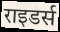
राइडर्स